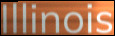
Illinois